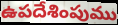
ఉపదేశింపుము